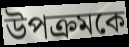
উপক্রমকে